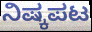
ನಿಷ್ಕಪಟ